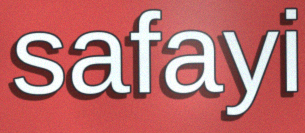
safayi